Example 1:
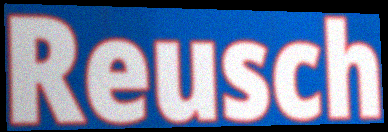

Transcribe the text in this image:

Reusch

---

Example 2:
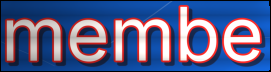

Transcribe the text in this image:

membe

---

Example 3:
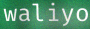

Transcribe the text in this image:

waliyo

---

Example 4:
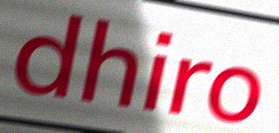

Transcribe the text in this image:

dhiro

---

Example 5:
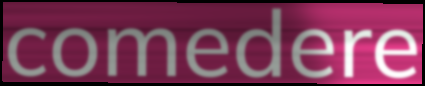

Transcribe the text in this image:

comedere